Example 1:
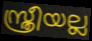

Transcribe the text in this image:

സ്ത്രീയല്ല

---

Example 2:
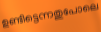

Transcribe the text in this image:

ഉണ്ടിട്ടെന്നതുപോലെ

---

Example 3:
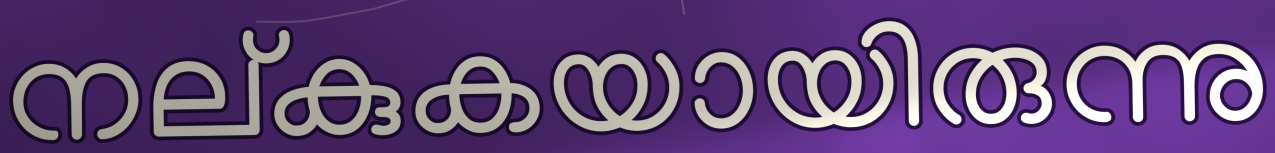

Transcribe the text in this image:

നല്കുകയായിരുന്നു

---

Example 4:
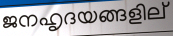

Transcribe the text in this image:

ജനഹൃദയങ്ങളില്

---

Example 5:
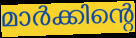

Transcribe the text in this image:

മാർക്കിന്റെ